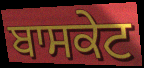
ਬਾਸਕੇਟ